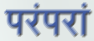
परंपरां